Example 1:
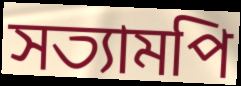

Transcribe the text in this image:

সত্যামপি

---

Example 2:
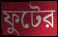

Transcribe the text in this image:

ফুটের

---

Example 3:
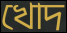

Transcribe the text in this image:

খোদ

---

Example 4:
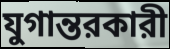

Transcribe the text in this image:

যুগান্তরকারী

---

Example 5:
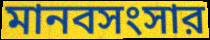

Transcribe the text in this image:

মানবসংসার